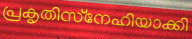
പ്രകൃതിസ്‌നേഹിയാക്കി